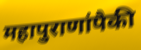
महापुराणांपैकी